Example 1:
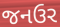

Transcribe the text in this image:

જનઉર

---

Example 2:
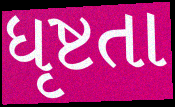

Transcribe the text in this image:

ધૃષ્ટતા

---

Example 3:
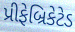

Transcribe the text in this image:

પ્રીફેબ્રિકેટેડ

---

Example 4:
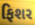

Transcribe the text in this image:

ફિશર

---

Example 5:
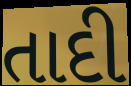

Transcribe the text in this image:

તાદી